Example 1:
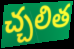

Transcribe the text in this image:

చ్చలిత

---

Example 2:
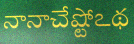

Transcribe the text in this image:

నానాచేష్టోఽథ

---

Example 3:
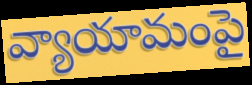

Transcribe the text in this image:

వ్యాయామంపై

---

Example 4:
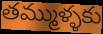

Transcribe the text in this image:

తమ్ముళ్ళకు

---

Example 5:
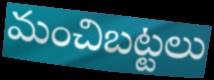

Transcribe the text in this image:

మంచిబట్టలు